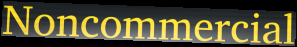
Noncommercial